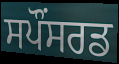
ਸਪੌਂਸਰਡ